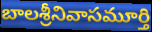
బాలశ్రీనివాసమూర్తి